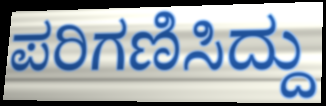
ಪರಿಗಣಿಸಿದ್ದು